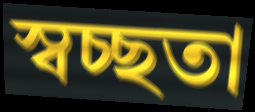
স্বচ্ছতা